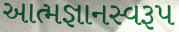
આત્મજ્ઞાનસ્વરૂપ